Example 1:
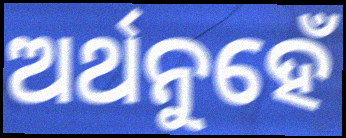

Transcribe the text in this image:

ଅର୍ଥନୁହେଁ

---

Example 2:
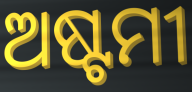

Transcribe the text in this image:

ଅଷ୍ଟମୀ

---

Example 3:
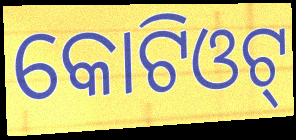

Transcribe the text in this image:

କୋଟିଓଟ୍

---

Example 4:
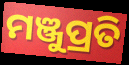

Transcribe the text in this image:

ମଞ୍ଜୁପ୍ରତି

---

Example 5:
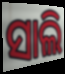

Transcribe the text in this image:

ସାଲି